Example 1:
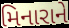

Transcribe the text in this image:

મિનારાને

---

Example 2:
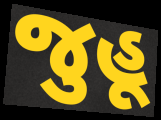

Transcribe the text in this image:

જુહૂ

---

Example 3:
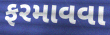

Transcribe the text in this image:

ફરમાવવા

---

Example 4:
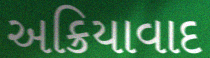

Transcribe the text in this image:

અક્રિયાવાદ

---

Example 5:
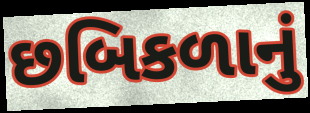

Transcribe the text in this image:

છબિકળાનું